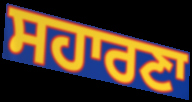
ਸਹਾਰਣਾ